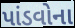
પાંડવોના